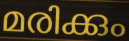
മരിക്കും